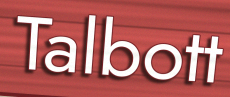
Talbott